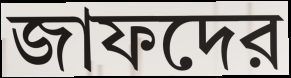
জাফদের